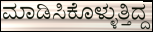
ಮಾಡಿಸಿಕೊಳ್ಳುತ್ತಿದ್ದ